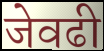
जेवढी